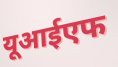
यूआईएफ